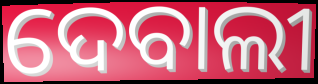
ଦେବାଲୀ